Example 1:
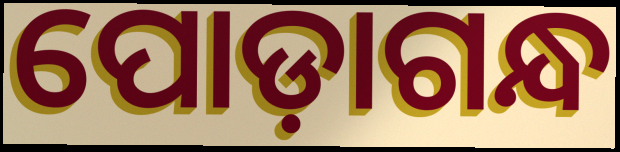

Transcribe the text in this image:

ପୋଡ଼ାଗନ୍ଧ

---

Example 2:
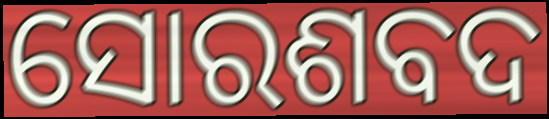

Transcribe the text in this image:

ସୋରଶବଦ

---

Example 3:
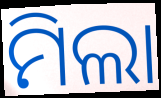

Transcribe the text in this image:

ମିଲା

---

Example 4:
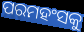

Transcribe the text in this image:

ପରମହଂସକୁ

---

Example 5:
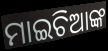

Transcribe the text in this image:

ମାଇଚିଆଙ୍କ